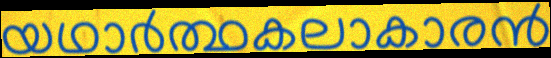
യഥാർത്ഥകലാകാരൻ